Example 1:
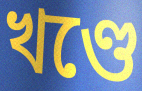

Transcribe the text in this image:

খণ্ডে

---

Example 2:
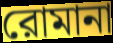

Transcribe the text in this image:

রোমানা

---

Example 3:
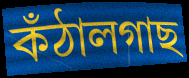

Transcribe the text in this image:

কঁঠালগাছ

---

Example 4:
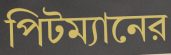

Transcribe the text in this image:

পিটম্যানের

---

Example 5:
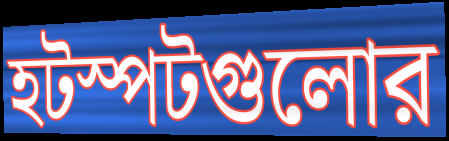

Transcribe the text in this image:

হটস্পটগুলোর